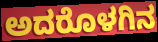
ಅದರೊಳಗಿನ